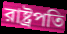
রাষ্ট্রপতি